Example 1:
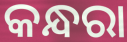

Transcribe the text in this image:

କନ୍ଧରା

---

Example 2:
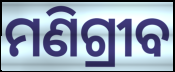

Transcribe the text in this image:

ମଣିଗ୍ରୀବ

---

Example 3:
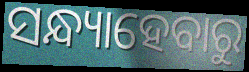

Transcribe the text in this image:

ସନ୍ଧ୍ୟାହେବାରୁ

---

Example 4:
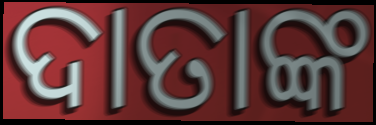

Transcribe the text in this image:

ଦାତାଙ୍କ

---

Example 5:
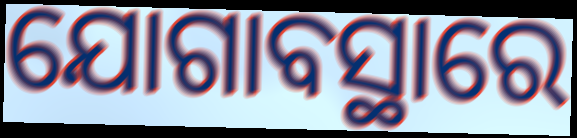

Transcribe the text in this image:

ଯୋଗାବସ୍ଥାରେ